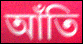
আঁতি